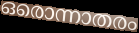
ഒരൊന്നാതരം